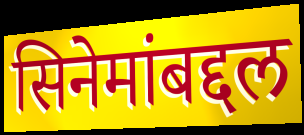
सिनेमांबद्दल